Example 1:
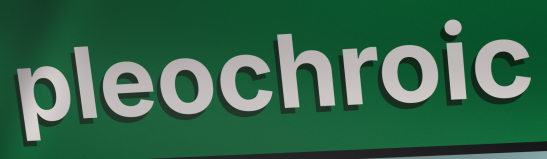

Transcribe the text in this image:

pleochroic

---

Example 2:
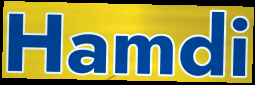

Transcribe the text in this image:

Hamdi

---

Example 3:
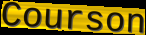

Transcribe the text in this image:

Courson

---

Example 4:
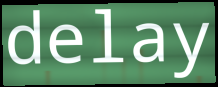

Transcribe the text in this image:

delay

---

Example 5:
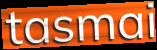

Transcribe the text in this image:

tasmai